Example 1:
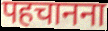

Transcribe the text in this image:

पहचानना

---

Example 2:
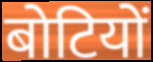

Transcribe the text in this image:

बोटियों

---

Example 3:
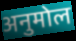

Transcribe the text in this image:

अनुमोल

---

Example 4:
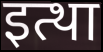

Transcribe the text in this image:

इत्था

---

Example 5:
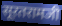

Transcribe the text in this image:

सूरतरामजी